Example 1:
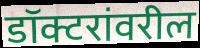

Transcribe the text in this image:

डॉक्टरांवरील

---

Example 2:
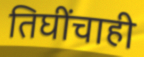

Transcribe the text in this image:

तिघींचाही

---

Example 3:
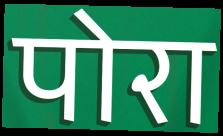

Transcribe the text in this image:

पोरा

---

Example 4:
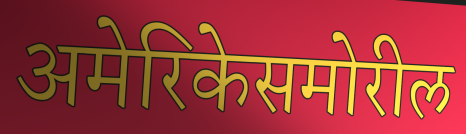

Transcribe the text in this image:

अमेरिकेसमोरील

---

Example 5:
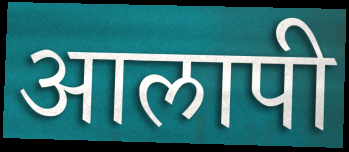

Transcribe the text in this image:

आलापी